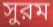
সুরম